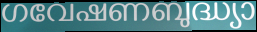
ഗവേഷണബുദ്ധ്യാ